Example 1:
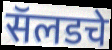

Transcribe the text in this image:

सॅलडचे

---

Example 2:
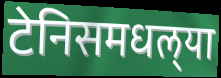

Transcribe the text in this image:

टेनिसमधल्या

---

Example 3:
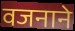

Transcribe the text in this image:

वजनाने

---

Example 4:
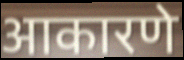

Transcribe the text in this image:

आकारणे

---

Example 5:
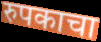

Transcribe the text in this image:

रुपकाचा